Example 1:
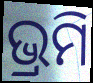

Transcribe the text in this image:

ଭ୍ରମି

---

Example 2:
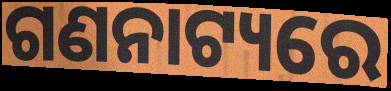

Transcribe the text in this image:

ଗଣନାଟ୍ୟରେ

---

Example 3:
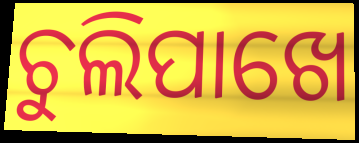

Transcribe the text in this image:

ଚୁଲିପାଖେ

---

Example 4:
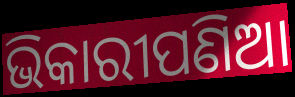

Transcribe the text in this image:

ଭିକାରୀପଣିଆ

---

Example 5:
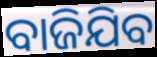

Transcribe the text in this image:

ବାଜିଯିବ